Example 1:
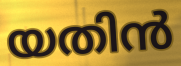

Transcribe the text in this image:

യതിൻ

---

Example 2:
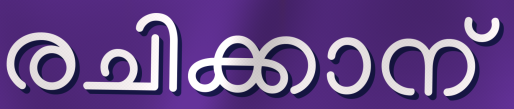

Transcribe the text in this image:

രചിക്കാന്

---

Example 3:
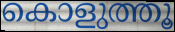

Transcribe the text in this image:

കൊളുത്തൂ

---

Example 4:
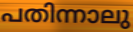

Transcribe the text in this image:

പതിന്നാലു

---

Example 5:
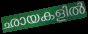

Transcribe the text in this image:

ഛായകളിൽ